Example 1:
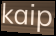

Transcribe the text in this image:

kaip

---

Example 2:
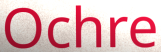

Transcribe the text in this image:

Ochre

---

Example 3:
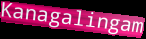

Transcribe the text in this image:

Kanagalingam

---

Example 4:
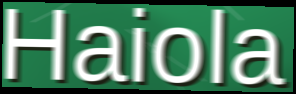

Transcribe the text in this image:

Haiola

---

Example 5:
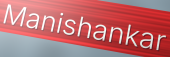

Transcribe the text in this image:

Manishankar